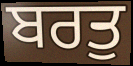
ਬਰਤੁ